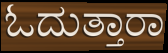
ಓದುತ್ತಾರಾ